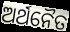
ଅର୍ଥନୈତ